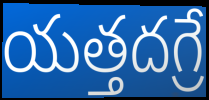
యత్తదగ్రే